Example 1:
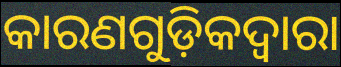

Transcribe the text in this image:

କାରଣଗୁଡ଼ିକଦ୍ବାରା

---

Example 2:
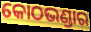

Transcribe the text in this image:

କୋଠଭଣ୍ଡାର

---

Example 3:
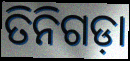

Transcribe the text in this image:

ତିନିଗଡ଼ା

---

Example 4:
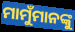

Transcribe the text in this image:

ମାମୁଁମାନଙ୍କୁ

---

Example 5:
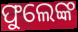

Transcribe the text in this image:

ଫୁଲେଙ୍କ